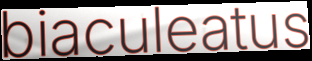
biaculeatus